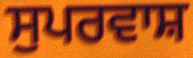
ਸੁਪਰਵਾਸ਼